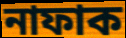
নাফাক